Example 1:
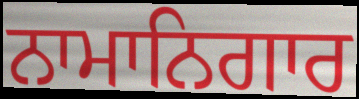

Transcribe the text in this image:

ਨਾਮਾਨਿਗਾਰ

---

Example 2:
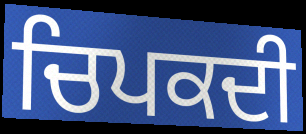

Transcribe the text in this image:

ਚਿਪਕਦੀ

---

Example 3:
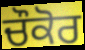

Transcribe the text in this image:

ਚੌਕੋਰ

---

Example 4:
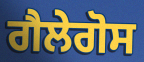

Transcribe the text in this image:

ਗੈਲੇਗੋਸ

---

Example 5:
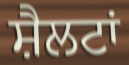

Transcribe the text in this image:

ਸ਼ੈਲਟਾਂ